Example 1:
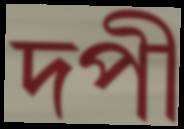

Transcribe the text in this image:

দপী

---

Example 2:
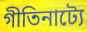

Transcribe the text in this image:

গীতিনাট্যে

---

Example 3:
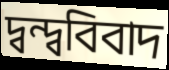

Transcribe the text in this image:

দ্বন্দ্ববিবাদ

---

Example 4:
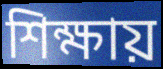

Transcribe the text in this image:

শিক্ষায়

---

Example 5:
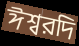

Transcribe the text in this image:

ঈশ্বরদি